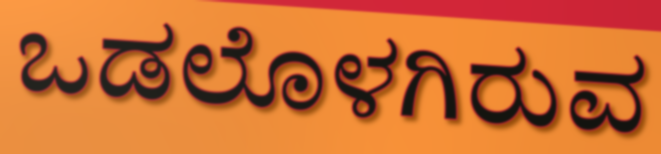
ಒಡಲೊಳಗಿರುವ